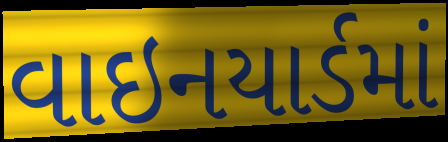
વાઇનયાર્ડમાં